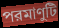
পরমাণুটি